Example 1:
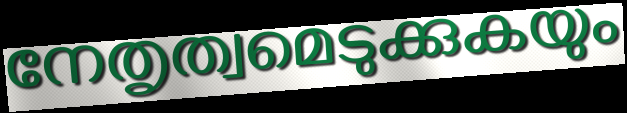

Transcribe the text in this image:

നേതൃത്വമെടുക്കുകയും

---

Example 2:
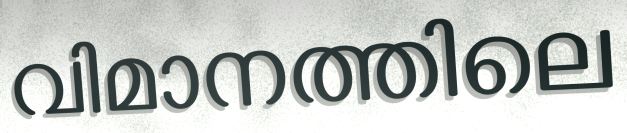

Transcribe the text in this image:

വിമാനത്തിലെ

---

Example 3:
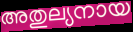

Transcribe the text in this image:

അതുല്യനായ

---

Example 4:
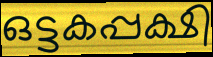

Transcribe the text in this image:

ഒട്ടകപ്പക്ഷി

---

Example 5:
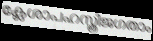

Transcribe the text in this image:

ക്ലേശാപഹസ്ത്രിജഗതാം